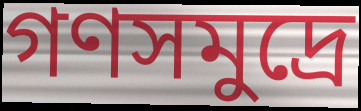
গণসমুদ্রে